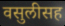
वसुलीसह